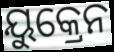
ୟୁକ୍ରେନ